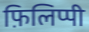
फ़िलिप्पी